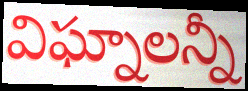
విఘ్నాలన్నీ